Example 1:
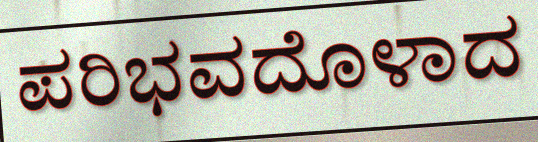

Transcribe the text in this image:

ಪರಿಭವದೊಳಾದ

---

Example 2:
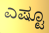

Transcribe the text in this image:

ಎಷ್ಟೂ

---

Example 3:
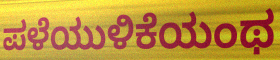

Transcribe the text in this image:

ಪಳೆಯುಳಿಕೆಯಂಥ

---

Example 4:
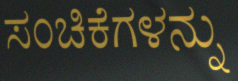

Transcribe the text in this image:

ಸಂಚಿಕೆಗಳನ್ನು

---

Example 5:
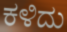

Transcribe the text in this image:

ಕಳಿದು